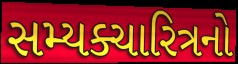
સમ્યક્ચારિત્રનો